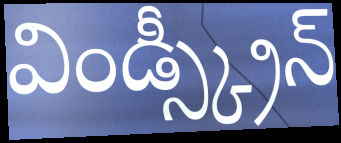
విండ్స్క్రీన్